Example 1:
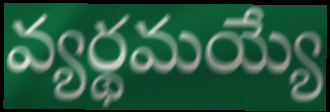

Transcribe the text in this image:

వ్యర్థమయ్యే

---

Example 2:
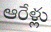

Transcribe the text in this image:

ఆరేళ్లు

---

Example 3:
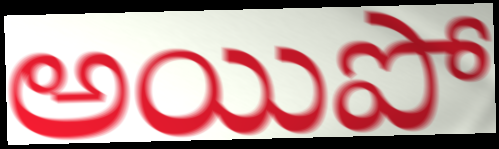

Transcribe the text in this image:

అయిపో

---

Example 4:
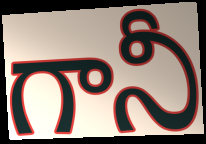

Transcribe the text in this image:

గానీ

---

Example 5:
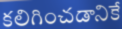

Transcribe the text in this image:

కలిగించడానికే